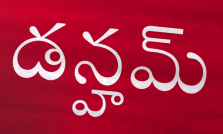
డన్హమ్